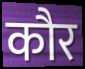
कौर